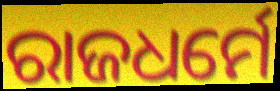
ରାଜଧର୍ମେ